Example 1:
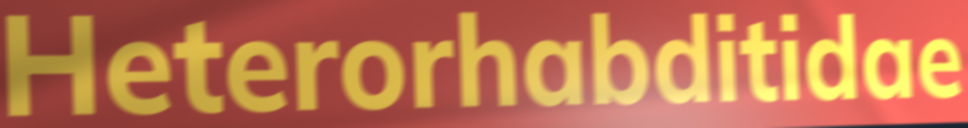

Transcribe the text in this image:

Heterorhabditidae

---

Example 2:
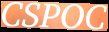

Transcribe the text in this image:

CSPOC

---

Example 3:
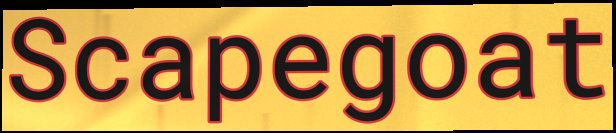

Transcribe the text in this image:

Scapegoat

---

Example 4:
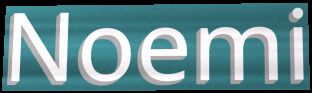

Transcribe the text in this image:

Noemi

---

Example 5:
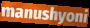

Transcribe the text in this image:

manushyoni